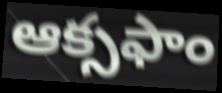
ఆక్సఫాం